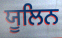
ਯੂਲਿਨ